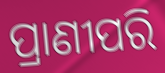
ପ୍ରାଣୀପରି